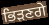
ਭਿੜਣਗੇ